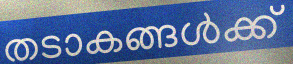
തടാകങ്ങൾക്ക്